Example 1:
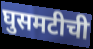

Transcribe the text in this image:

घुसमटीची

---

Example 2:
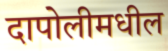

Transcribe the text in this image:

दापोलीमधील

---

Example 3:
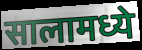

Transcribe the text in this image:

सालामध्ये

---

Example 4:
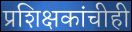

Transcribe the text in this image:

प्रशिक्षकांचीही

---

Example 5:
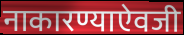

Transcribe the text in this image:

नाकारण्याऐवजी